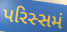
પરિસ્સમં